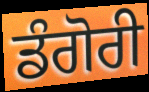
ਡੰਗੋਰੀ